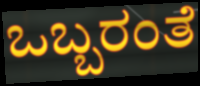
ಒಬ್ಬರಂತೆ